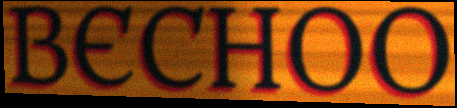
BECHOO